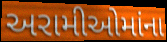
અરામીઓમાંના